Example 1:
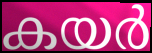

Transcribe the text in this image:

കയർ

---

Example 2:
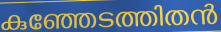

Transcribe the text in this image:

കുഞ്ഞേടത്തിതൻ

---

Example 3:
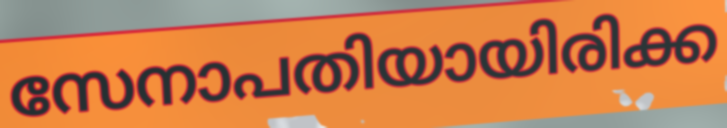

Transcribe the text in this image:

സേനാപതിയായിരിക്ക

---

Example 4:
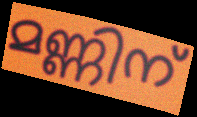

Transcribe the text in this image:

മണ്ണിന്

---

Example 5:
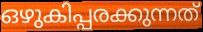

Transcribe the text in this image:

ഒഴുകിപ്പരക്കുന്നത്